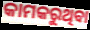
କାମକରୁଥିବା